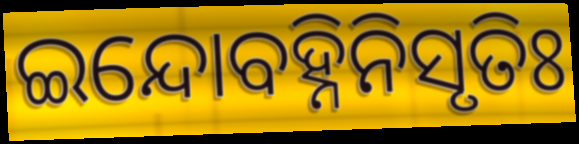
ଇନ୍ଦୋବହ୍ନିନିସୃତିଃ